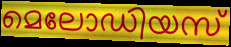
മെലോഡിയസ്